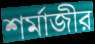
শর্মাজীর